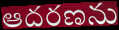
ఆదరణను